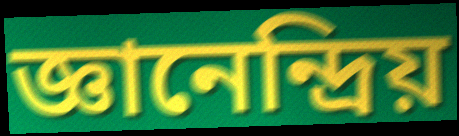
জ্ঞানেন্দ্ৰিয়